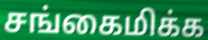
சங்கைமிக்க